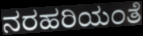
ನರಹರಿಯಂತೆ